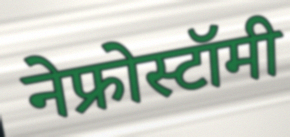
नेफ्रोस्टॉमी